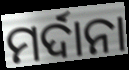
ମର୍ଦାନା